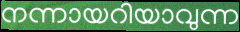
നന്നായറിയാവുന്ന